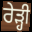
ਰੇੜ੍ਹੀ